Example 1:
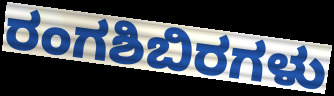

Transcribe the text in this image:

ರಂಗಶಿಬಿರಗಳು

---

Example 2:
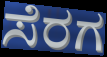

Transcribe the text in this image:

ಸೆರಗ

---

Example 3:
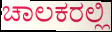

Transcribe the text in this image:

ಚಾಲಕರಲ್ಲಿ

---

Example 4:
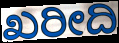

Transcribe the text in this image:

ಖರೀದಿ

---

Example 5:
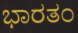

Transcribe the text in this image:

ಭಾರತಂ